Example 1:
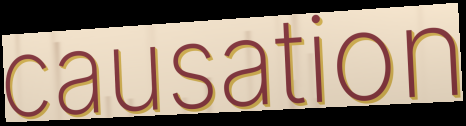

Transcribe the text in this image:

causation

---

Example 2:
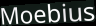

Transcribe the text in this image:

Moebius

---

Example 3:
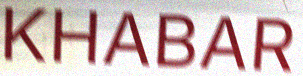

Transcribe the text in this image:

KHABAR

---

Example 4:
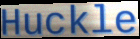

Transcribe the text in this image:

Huckle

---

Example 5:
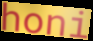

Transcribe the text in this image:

honi